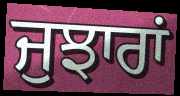
ਜੁਝਾਰਾਂ